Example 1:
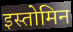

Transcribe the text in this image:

इस्तोमिन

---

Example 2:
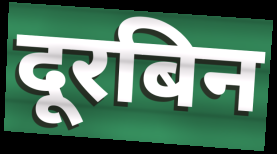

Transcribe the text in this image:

दूरबिन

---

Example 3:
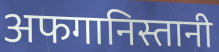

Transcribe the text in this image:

अफगानिस्तानी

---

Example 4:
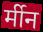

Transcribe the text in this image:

र्मीन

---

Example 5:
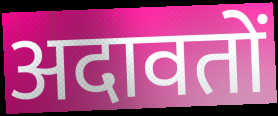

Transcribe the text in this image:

अदावतों